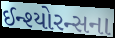
ઈન્શ્યોરન્સના